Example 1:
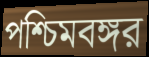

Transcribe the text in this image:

পশ্চিমবঙ্গর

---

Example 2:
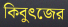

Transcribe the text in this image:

কিবুৎজের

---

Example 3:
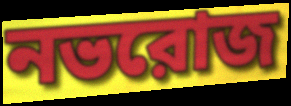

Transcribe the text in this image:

নভরোজ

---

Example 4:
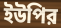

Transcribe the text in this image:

ইউপির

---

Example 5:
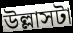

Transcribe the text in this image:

উল্লাসটা